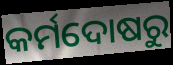
କର୍ମଦୋଷରୁ